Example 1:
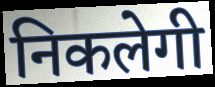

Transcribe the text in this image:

निकलेगी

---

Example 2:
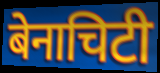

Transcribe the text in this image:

बेनाचिटी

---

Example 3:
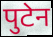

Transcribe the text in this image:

पुटेन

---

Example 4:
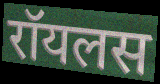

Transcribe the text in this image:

रॉयलस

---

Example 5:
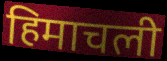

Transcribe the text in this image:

हिमाचली